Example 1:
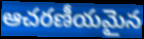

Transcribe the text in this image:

ఆచరణీయమైన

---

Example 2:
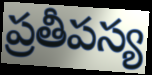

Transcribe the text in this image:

ప్రతీపస్య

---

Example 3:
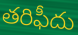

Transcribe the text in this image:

తరిఫీదు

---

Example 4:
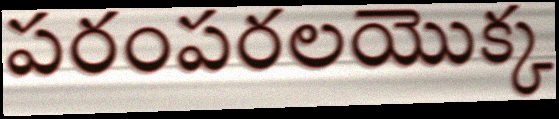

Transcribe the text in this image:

పరంపరలయొక్క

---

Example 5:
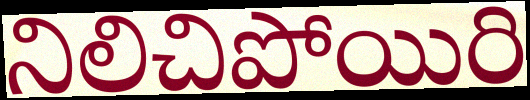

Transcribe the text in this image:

నిలిచిపోయిరి